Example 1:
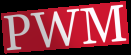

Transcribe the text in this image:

PWM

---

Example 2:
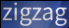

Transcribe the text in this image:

zigzag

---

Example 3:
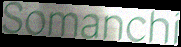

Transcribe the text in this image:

Somanchi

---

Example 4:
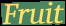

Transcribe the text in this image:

Fruit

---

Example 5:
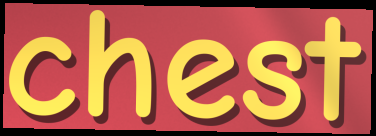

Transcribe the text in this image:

chest